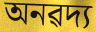
অনৱদ্য